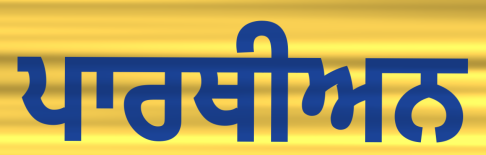
ਪਾਰਥੀਅਨ